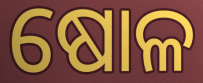
ଷୋଳ